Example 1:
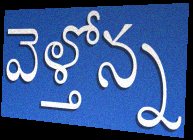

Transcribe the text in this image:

వెళ్తోన్న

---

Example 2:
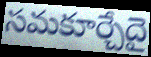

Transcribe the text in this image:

సమకూర్చేదై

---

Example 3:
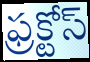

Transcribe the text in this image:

ఫ్రక్టోస్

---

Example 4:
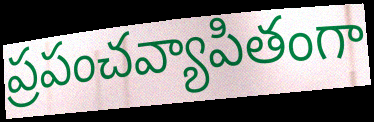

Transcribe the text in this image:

ప్రపంచవ్యాపితంగా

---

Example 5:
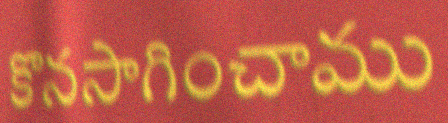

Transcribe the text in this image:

కొనసాగించాము